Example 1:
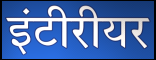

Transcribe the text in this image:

इंटीरीयर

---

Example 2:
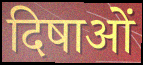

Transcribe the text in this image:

दिषाओं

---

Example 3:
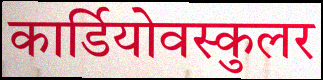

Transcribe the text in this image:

कार्डियोवस्कुलर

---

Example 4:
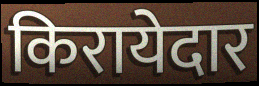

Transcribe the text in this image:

किरायेदार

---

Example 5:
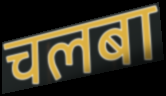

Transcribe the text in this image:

चलबा